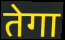
तेगा